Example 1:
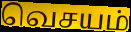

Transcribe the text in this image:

வெசயம்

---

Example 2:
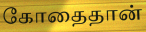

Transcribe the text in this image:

கோதைதான்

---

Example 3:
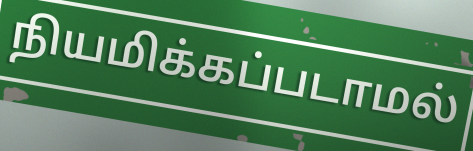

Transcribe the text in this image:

நியமிக்கப்படாமல்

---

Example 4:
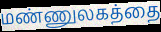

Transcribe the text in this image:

மண்ணுலகத்தை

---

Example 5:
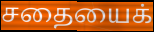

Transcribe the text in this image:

சதையைக்